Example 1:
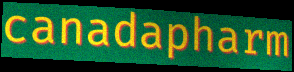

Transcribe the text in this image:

canadapharm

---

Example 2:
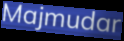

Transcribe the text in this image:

Majmudar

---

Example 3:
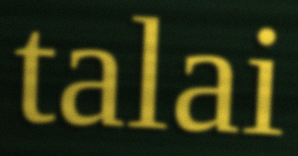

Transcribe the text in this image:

talai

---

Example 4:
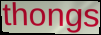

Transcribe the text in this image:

thongs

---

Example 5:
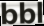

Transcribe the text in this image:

bbl